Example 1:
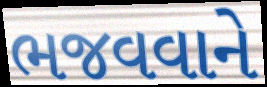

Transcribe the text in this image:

ભજવવાને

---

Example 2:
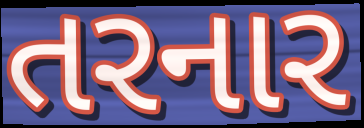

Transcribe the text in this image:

તરનાર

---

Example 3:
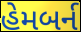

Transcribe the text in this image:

હેમબર્ન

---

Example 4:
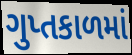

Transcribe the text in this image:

ગુપ્તકાળમાં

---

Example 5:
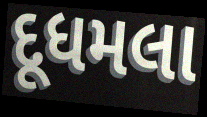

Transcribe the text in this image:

દૂધમલા